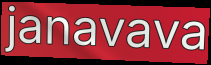
janavava